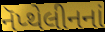
નૅપ્થેલીનનાં